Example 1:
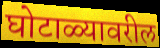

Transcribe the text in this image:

घोटाळ्यावरील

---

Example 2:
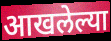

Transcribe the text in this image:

आखलेल्या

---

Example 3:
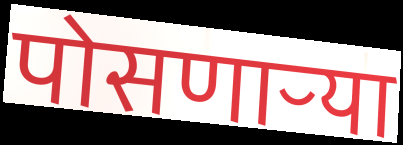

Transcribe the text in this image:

पोसणाऱ्या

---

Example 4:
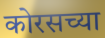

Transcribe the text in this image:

कोरसच्या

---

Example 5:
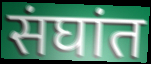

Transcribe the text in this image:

संघांत